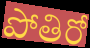
పోతిరో